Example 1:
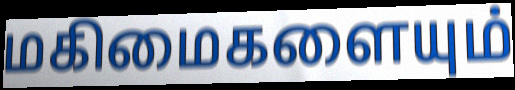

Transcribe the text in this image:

மகிமைகளையும்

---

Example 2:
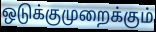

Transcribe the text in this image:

ஒடுக்குமுறைக்கும்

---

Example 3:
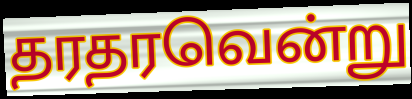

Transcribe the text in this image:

தரதரவென்று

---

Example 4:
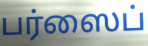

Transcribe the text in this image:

பர்ஸைப்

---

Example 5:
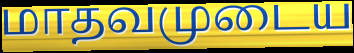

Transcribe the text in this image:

மாதவமுடைய